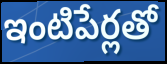
ఇంటిపేర్లతో